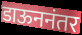
डाऊननंतर